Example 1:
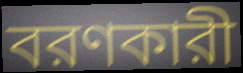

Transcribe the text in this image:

বরণকারী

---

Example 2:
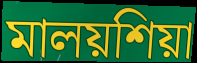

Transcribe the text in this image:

মালয়শিয়া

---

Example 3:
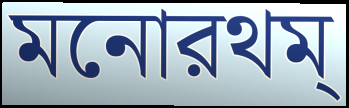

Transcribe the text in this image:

মনোরথম্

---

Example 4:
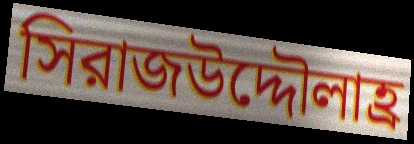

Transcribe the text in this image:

সিরাজউদ্দৌলাহ্র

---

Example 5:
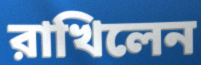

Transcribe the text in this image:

রাখিলেন